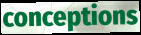
conceptions